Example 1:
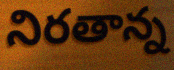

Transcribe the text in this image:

నిరతాన్న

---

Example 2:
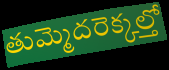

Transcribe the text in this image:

తుమ్మెదరెక్కల్తో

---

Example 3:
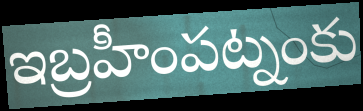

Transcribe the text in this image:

ఇబ్రహీంపట్నంకు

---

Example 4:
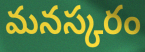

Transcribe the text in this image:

మనస్కరం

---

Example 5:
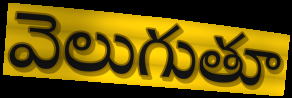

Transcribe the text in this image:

వెలుగుతూ